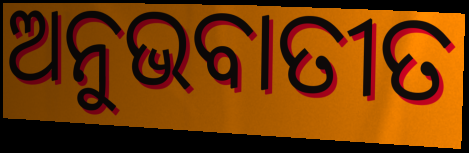
ଅନୁଭବାତୀତ